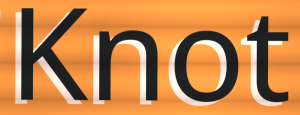
Knot